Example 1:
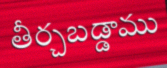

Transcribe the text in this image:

తీర్చబడ్డాము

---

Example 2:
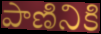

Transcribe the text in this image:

పాణినికి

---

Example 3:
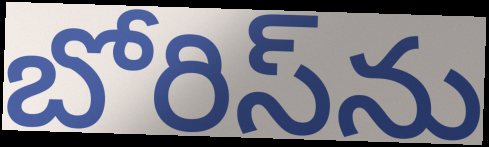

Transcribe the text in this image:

బోరిస్‌ను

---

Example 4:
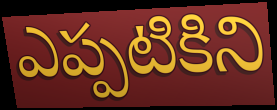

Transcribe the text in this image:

ఎప్పటికిని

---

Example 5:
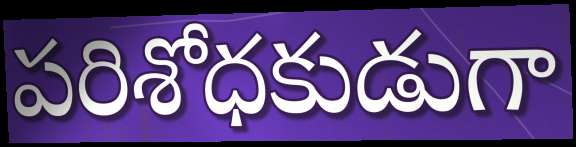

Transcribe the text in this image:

పరిశోధకుడుగా